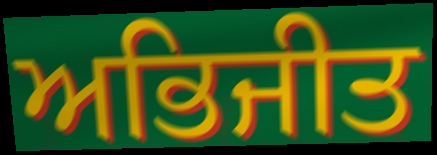
ਅਭਿਜੀਤ